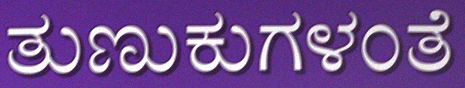
ತುಣುಕುಗಳಂತೆ